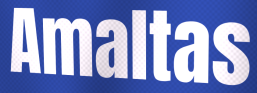
Amaltas